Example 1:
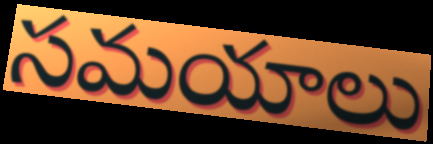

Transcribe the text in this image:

సమయాలు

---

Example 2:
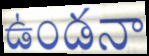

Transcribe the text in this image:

ఉండనా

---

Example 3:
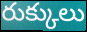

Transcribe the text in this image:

రుక్కులు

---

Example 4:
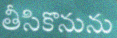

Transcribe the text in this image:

తీసికొనును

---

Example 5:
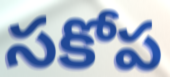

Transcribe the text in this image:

సకోప